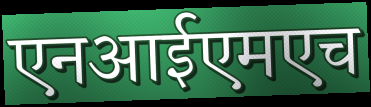
एनआईएमएच